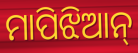
ମାପିଝିଆନ୍